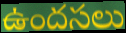
ఉందసలు